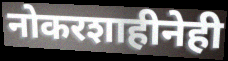
नोकरशाहीनेही